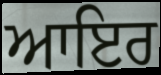
ਆਇਰ